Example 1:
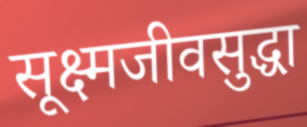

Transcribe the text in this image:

सूक्ष्मजीवसुद्धा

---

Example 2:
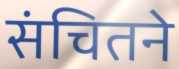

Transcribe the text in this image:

संचितने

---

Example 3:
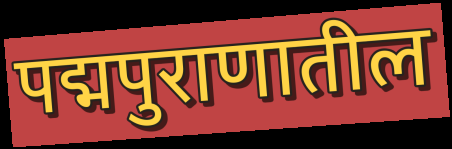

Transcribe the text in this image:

पद्मपुराणातील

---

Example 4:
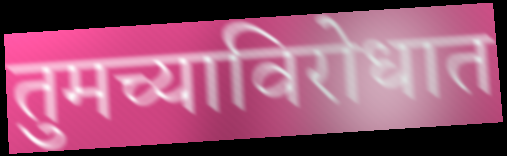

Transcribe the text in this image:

तुमच्याविरोधात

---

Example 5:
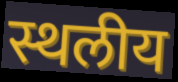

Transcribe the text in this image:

स्थलीय